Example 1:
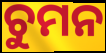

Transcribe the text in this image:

ଚୁମନ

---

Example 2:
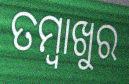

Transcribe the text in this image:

ତମ୍ବାଖୁର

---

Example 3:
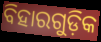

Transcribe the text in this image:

ବିହାରଗୁଡ଼ିକ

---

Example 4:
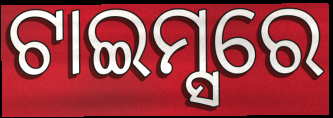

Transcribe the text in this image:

ଟାଇମ୍ସରେ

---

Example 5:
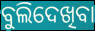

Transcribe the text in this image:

ବୁଲିଦେଖିବା